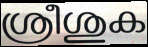
ശ്രീശുക